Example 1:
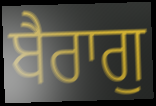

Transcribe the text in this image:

ਬੈਰਾਗੁ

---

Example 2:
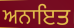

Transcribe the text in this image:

ਅਨਾਇਤ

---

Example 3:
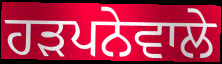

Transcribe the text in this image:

ਹੜਪਨੇਵਾਲੇ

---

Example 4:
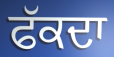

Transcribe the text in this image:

ਫੱਕਦਾ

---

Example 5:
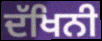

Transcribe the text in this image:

ਦੱਖਿਨੀ